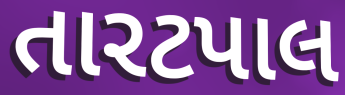
તારટપાલ